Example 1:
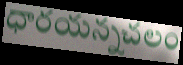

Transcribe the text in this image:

ధారయన్నచలం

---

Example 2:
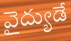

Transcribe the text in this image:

వైద్యుడే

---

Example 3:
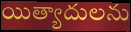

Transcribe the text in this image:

యిత్యాదులను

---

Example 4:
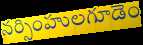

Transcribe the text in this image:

నర్సింహులగూడెం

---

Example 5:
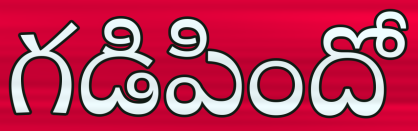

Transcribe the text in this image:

గడిపిందో